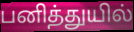
பனித்துயில்